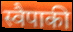
स्वैपाकी